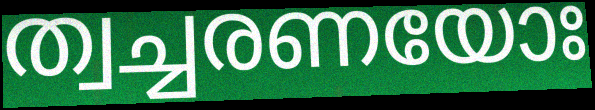
ത്വച്ചരണയോഃ